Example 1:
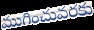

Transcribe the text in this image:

ముగించువరకు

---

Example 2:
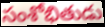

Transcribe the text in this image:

సంశోభితుడు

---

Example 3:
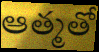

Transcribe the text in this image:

ఆత్మతో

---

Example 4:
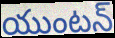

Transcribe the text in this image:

యుంటన్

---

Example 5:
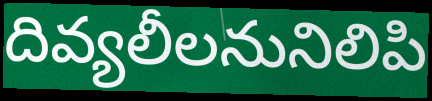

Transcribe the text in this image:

దివ్యలీలనునిలిపి